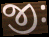
જીઃ